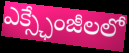
ఎక్స్ఛేంజీలలో